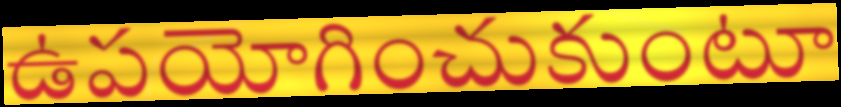
ఉపయోగించుకుంటూ